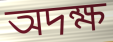
অদক্ষ